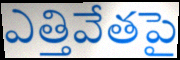
ఎత్తివేతపై